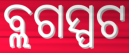
ବ୍ଲଗସ୍ପଟ